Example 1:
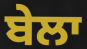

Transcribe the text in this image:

ਬੇਲਾ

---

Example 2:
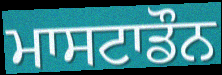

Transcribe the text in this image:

ਮਾਸਟਾਡੌਨ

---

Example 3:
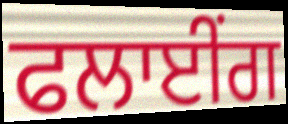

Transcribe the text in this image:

ਫਲਾਈਂਗ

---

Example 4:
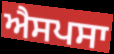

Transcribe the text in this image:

ਐਸਪਸਾ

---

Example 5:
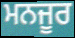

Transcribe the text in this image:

ਮਨਜੂਰ